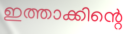
ഇത്താക്കിന്റെ